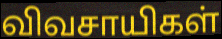
விவசாயிகள்